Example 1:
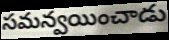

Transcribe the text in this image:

సమన్వయించాడు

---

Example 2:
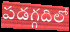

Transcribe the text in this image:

పడగ్గదిలో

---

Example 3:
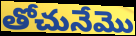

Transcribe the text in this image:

తోచునేమొ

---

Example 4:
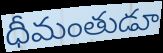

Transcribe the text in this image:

ధీమంతుడూ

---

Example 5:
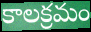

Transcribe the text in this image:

కాలక్రమం